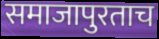
समाजापुरताच